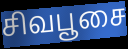
சிவபூசை